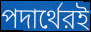
পদার্থেরই